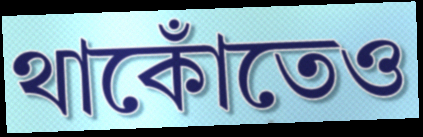
থাকোঁতেও